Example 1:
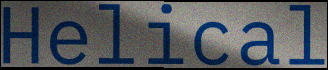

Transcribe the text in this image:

Helical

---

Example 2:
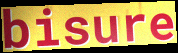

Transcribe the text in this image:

bisure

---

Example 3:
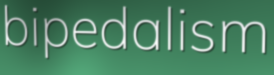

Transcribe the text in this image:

bipedalism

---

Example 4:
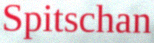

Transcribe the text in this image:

Spitschan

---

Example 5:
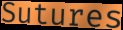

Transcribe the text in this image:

Sutures